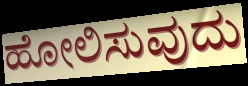
ಹೋಲಿಸುವುದು